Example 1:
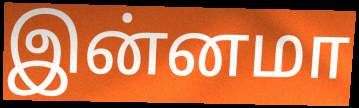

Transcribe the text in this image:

இன்னமா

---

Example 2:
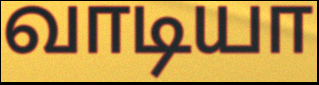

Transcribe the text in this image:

வாடியா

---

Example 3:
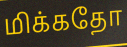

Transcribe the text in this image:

மிக்கதோ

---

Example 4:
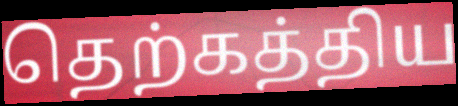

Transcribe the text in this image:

தெற்கத்திய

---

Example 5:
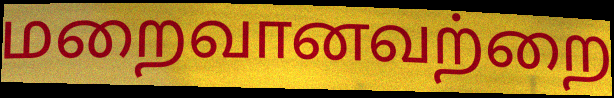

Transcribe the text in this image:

மறைவானவற்றை